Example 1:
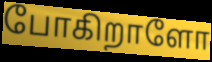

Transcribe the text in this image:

போகிறாளோ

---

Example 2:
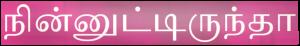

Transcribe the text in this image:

நின்னுட்டிருந்தா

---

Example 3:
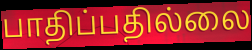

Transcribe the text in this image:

பாதிப்பதில்லை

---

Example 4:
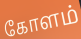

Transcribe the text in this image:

கோளம்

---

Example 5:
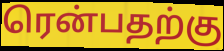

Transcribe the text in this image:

ரென்பதற்கு